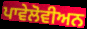
ਪਾਵੇਲੋਵੀਅਨ